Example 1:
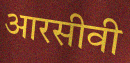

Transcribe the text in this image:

आरसीवी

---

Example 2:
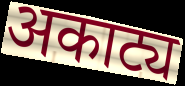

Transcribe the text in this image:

अकाट्य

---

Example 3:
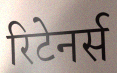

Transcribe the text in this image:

रिटेनर्स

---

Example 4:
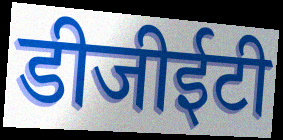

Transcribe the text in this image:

डीजीईटी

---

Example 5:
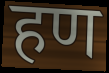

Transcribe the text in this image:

हण